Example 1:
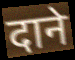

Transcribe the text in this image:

दाने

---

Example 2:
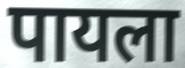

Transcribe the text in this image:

पायला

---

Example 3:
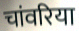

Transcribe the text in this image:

चांवरिया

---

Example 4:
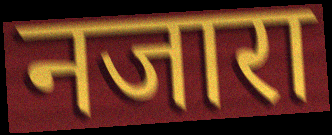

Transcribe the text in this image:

नजारा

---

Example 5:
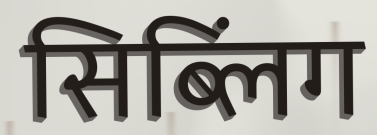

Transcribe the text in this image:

सिब्लिंग